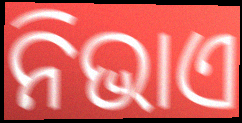
ନିଭାଏ